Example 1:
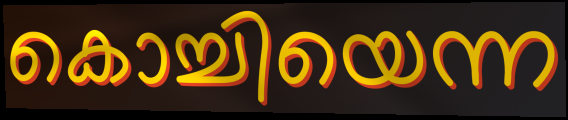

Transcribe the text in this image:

കൊച്ചിയെന്ന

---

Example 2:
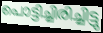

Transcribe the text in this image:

പൊട്ടിച്ചിരിച്ചിട്ടു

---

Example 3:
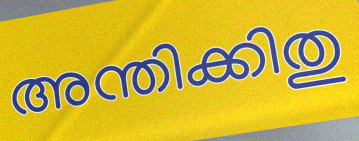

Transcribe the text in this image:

അന്തിക്കിതു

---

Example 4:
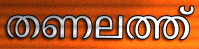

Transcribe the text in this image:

തണലത്ത്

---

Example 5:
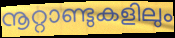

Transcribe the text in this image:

നൂറ്റാണ്ടുകളിലും